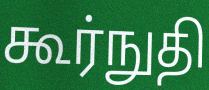
கூர்நுதி